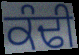
ਕੰਢੀ